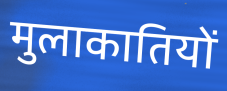
मुलाकातियों